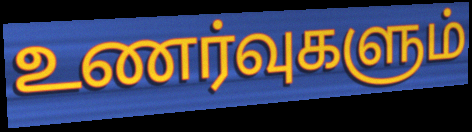
உணர்வுகளும்